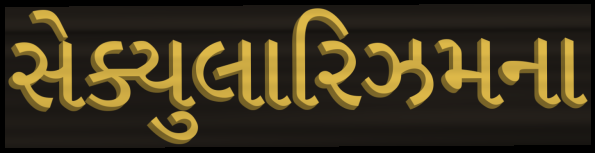
સેક્યુલારિઝમના